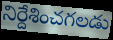
నిర్దేశించగలడు